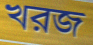
খরজ